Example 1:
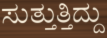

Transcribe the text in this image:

ಸುತ್ತುತ್ತಿದ್ದು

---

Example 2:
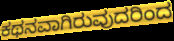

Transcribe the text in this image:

ಕಥನವಾಗಿರುವುದರಿಂದ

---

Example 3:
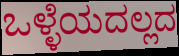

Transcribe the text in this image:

ಒಳ್ಳೆಯದಲ್ಲದ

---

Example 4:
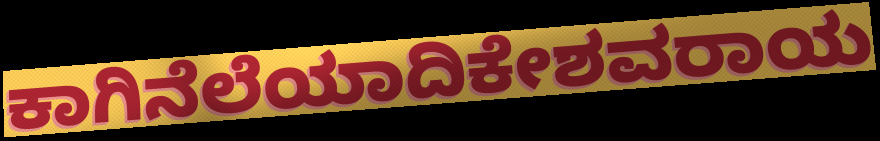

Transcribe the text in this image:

ಕಾಗಿನೆಲೆಯಾದಿಕೇಶವರಾಯ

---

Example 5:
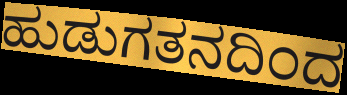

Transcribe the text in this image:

ಹುಡುಗತನದಿಂದ